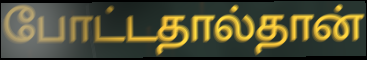
போட்டதால்தான்